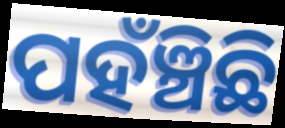
ପହଁଞ୍ଚିଛି